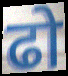
ढो